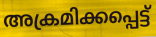
അക്രമിക്കപ്പെട്ട്